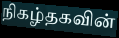
நிகழ்தகவின்